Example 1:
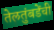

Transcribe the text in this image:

तेलतुंबडेंची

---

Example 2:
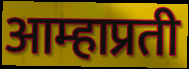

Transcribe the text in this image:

आम्हाप्रती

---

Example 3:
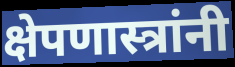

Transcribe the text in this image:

क्षेपणास्त्रांनी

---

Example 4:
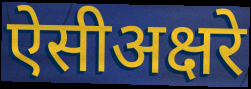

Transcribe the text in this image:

ऐसीअक्षरे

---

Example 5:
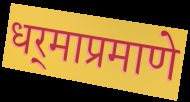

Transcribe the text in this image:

धर्माप्रमाणे